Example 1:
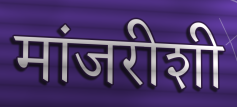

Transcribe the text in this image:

मांजरीशी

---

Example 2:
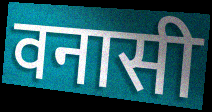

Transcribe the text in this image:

वनासी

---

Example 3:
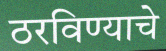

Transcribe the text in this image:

ठरविण्याचे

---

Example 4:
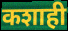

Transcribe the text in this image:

कशाही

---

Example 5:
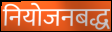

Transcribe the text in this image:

नियोजनबद्ध